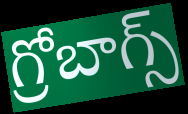
గ్రోబాగ్స్